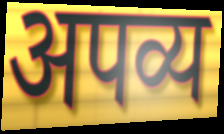
अपव्य